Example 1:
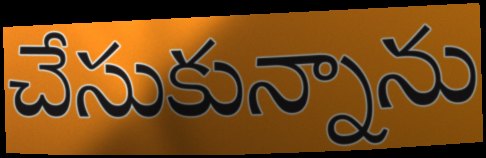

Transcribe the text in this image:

చేసుకున్నాను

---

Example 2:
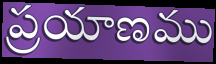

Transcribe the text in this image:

ప్రయాణము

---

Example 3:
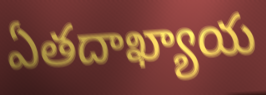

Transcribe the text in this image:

ఏతదాఖ్యాయ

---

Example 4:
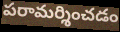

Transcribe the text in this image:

పరామర్శించడం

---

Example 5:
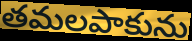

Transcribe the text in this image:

తమలపాకును